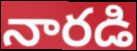
నారడి